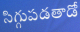
సిగ్గుపడతాడో